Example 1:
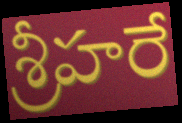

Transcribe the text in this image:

శ్రీహరే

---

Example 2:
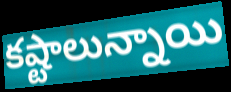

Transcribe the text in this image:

కష్టాలున్నాయి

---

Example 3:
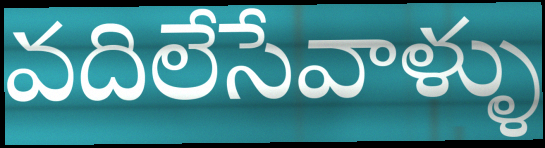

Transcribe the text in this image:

వదిలేసేవాళ్ళు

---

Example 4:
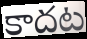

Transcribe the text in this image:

కాదట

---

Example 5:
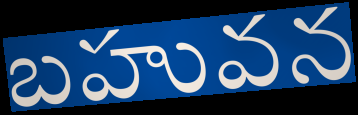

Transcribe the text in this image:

బహువన